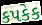
કપકેક